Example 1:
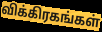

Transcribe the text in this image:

விக்கிரகங்கள்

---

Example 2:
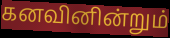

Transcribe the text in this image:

கனவினின்றும்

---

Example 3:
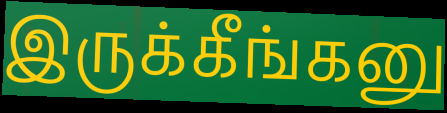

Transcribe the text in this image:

இருக்கீங்கனு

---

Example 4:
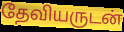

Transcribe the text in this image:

தேவியருடன்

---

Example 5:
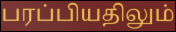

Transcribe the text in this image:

பரப்பியதிலும்